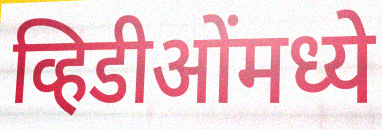
व्हिडीओंमध्ये